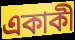
একাকী